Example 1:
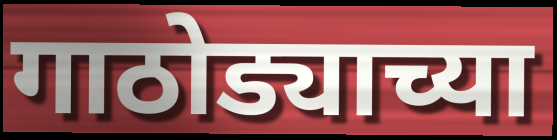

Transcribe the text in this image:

गाठोड्याच्या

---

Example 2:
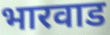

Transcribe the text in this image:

भारवाड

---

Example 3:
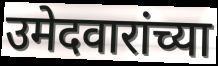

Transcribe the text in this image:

उमेदवारांच्या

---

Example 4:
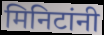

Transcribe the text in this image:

मिनिटांनी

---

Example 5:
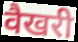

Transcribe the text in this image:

वैखरी